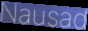
Nausad